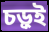
চড়ুই